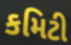
કમિટી